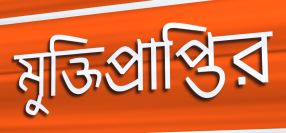
মুক্তিপ্রাপ্তির